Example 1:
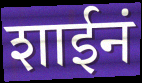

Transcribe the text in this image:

शाईनं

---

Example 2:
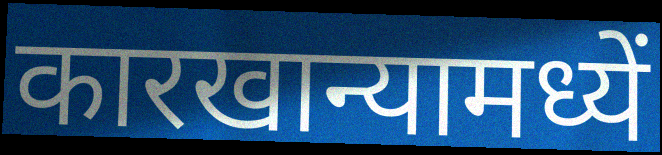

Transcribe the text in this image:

कारखान्यामध्यें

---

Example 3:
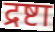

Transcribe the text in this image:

द्रष्टा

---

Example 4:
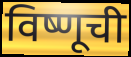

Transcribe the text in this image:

विष्णूची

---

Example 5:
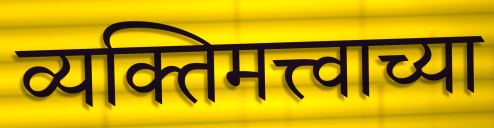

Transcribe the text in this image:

व्यक्तिमत्त्वाच्या